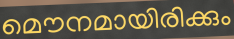
മൌനമായിരിക്കും